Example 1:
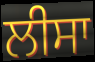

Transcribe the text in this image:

ਲੀਸਾ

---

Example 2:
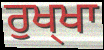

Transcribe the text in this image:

ਰੁਖ੍ਖਾ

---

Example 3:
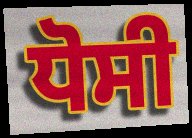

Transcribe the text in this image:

ਧੋਸੀ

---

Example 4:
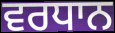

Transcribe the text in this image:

ਵਰਧਾਨ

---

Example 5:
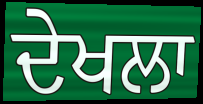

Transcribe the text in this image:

ਦੇਖਲਾ